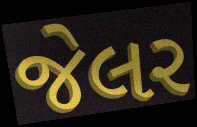
જેલર